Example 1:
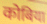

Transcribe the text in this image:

कोबिया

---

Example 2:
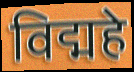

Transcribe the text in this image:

विद्महे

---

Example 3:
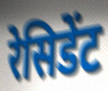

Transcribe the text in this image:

रेसिडेंट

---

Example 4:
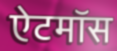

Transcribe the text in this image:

ऐटमॉस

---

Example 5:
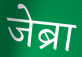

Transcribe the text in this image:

जेब्रा